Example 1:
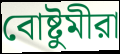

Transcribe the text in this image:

বোষ্টুমীরা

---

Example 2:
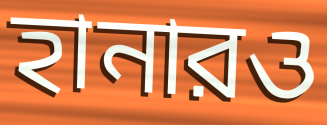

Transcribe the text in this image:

হানারও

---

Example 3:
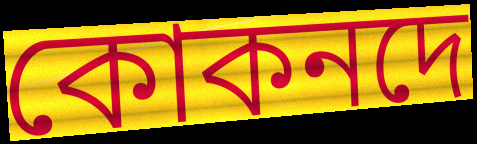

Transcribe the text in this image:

কোকনদে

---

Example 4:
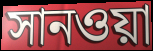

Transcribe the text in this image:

সানওয়া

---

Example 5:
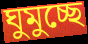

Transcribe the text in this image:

ঘুমুচ্ছে